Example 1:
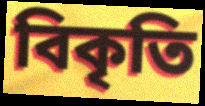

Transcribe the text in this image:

বিকৃতি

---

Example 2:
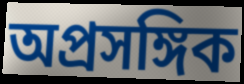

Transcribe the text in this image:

অপ্রসঙ্গিক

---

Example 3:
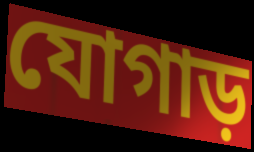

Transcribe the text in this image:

যোগাড়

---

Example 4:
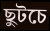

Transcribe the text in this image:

ছুটচে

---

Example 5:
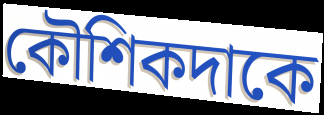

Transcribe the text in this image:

কৌশিকদাকে